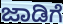
ಜಾಡಿಗೆ